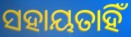
ସହାୟତାହିଁ